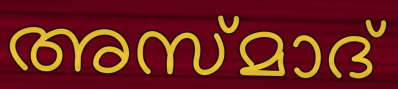
അസ്മാദ്